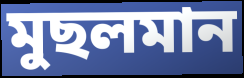
মুছলমান